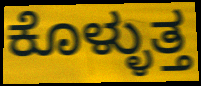
ಕೊಳ್ಳುತ್ತ